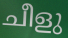
ചീളു